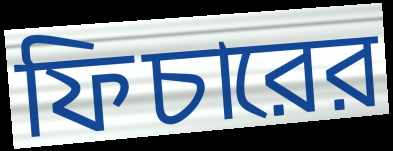
ফিচারের